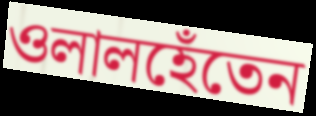
ওলালহেঁতেন